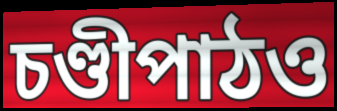
চণ্ডীপাঠও